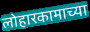
लोहारकामाच्या